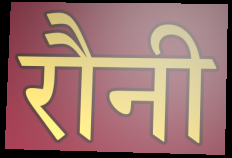
रौनी